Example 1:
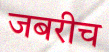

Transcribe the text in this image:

जबरीच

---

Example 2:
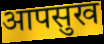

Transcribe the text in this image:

आपसुख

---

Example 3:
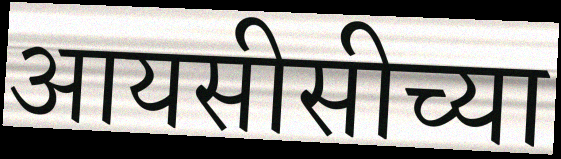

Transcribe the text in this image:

आयसीसीच्या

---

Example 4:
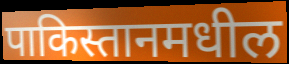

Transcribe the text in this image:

पाकिस्तानमधील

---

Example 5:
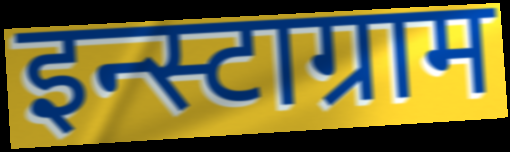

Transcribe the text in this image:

इन्स्टाग्राम